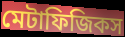
মেটাফিজিকস